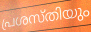
പ്രശസ്തിയും